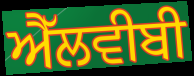
ਐੱਲਵੀਬੀ